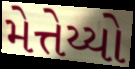
મેત્તેય્યો